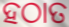
ହଠାତ